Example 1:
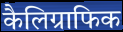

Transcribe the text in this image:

कैलिग्राफिक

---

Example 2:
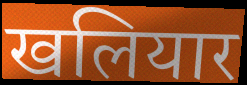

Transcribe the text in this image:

खलियार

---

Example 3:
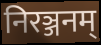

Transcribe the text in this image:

निरञ्जनम्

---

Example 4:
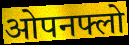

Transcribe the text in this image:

ओपनफ्लो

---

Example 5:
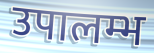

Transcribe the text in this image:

उपालम्भ